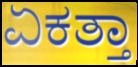
ಏಕತ್ತಾ